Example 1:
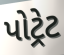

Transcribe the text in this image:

પોટ્રેટ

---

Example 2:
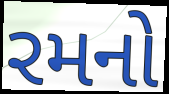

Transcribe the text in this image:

રમનો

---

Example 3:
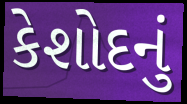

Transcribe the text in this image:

કેશોદનું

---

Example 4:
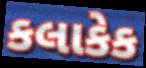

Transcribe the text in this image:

કલાકેક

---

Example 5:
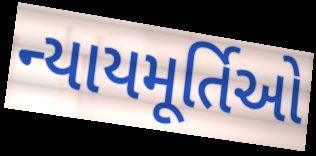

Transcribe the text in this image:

ન્યાયમૂર્તિઓ